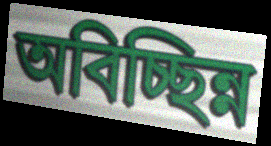
অবিচ্ছিন্ন